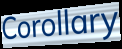
Corollary